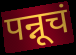
पन्नूचं